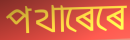
পথাৰেৰে